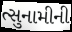
ત્સુનામીની